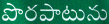
పొరపాటును